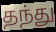
தந்து